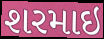
શરમાઇ